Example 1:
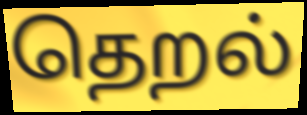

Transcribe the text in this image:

தெறல்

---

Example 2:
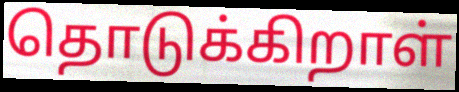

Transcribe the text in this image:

தொடுக்கிறாள்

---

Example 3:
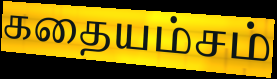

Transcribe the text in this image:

கதையம்சம்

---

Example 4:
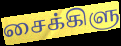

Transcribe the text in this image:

சைக்கிளு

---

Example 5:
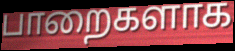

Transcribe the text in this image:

பாறைகளாக